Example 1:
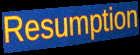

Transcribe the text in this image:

Resumption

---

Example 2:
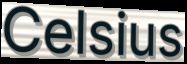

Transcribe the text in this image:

Celsius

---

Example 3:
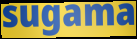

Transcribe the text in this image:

sugama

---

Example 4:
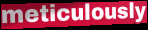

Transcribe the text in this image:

meticulously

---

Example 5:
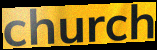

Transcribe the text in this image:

church